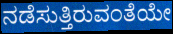
ನಡೆಸುತ್ತಿರುವಂತೆಯೇ